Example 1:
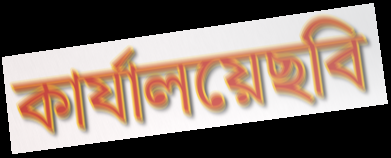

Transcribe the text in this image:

কার্যালয়েছবি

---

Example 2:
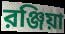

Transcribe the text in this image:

রঞ্জিয়া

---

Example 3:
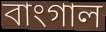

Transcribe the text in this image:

বাংগাল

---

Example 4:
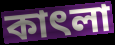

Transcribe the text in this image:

কাৎলা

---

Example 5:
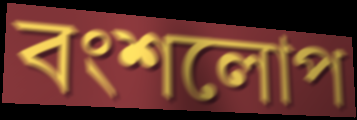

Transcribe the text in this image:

বংশলোপ